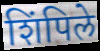
शिंपिले